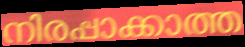
നിരപ്പാക്കാത്ത